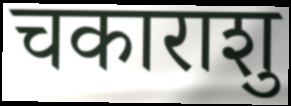
चकाराशु